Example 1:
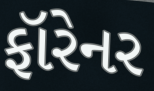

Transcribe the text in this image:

ફૉરેનર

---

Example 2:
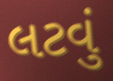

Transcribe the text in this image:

લટવું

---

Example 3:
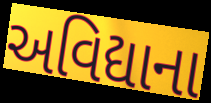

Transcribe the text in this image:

અવિદ્યાના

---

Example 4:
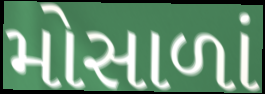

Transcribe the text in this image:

મોસાળાં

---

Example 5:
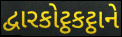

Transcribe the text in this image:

દ્વારકોટ્ઠકટ્ઠાને